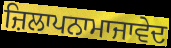
ਜ਼ਿਲਾਪਨਾਮਾਜਾਵੇਦ